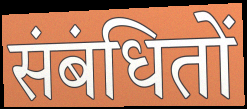
संबंधितों